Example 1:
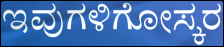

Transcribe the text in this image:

ಇವುಗಳಿಗೋಸ್ಕರ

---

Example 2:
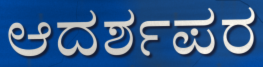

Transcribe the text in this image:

ಆದರ್ಶಪರ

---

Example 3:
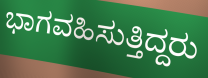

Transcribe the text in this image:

ಭಾಗವಹಿಸುತ್ತಿದ್ದರು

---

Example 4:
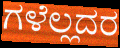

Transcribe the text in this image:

ಗಳೆಲ್ಲದರ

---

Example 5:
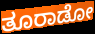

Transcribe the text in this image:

ತೂರಾಡೋ